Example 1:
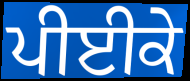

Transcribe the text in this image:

ਪੀਈਕੇ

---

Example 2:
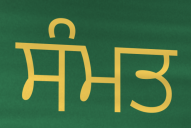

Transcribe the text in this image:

ਸੰਮਤ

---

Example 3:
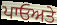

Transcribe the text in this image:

ਪਾਓਅਤੇ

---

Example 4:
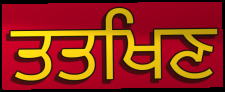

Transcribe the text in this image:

ਤਤਖਿਣ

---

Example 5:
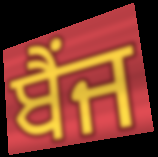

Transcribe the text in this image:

ਬੈਂਜ